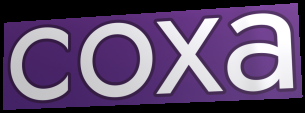
coxa